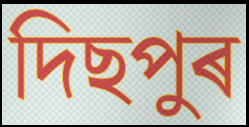
দিছপুৰ